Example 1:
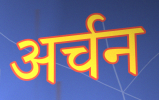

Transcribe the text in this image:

अर्चन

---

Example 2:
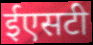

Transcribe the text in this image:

ईएसटी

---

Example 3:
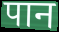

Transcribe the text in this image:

पान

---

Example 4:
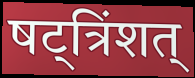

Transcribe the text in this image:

षट्त्रिंशत्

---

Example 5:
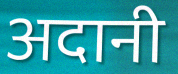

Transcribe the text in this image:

अदानी